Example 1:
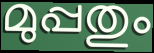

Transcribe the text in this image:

മുപ്പതും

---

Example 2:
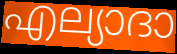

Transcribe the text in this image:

എല്യാദാ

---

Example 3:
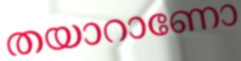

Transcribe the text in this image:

തയാറാണോ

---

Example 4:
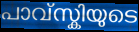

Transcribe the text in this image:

പാവ്സ്കിയുടെ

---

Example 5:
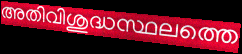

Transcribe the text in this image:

അതിവിശുദ്ധസ്ഥലത്തെ